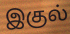
இகுல்